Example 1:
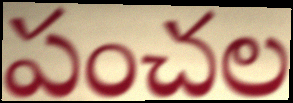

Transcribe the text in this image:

పంచల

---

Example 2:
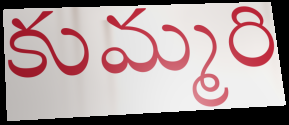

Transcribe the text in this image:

కుమ్మరి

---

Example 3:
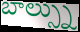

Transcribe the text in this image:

బాల్స్ను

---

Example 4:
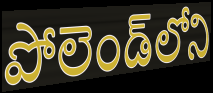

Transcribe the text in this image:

పోలెండ్‌లోని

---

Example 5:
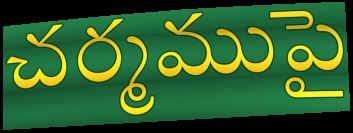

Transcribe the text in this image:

చర్మముపై